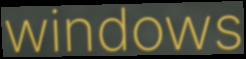
windows